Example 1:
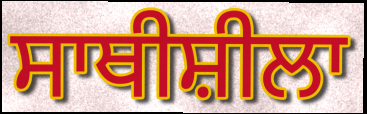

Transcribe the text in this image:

ਸਾਥੀਸ਼ੀਲਾ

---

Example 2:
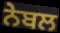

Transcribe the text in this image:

ਨੇਬਲ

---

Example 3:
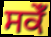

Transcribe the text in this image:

ਸਕੇਁ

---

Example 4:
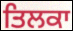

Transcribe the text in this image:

ਤਿਲਕਾ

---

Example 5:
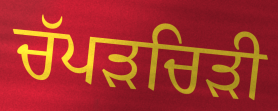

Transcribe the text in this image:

ਚੱਪੜਚਿੜੀ